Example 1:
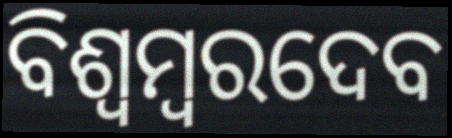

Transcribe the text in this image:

ବିଶ୍ୱମ୍ବରଦେବ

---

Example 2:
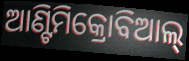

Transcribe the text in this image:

ଆଣ୍ଟିମିକ୍ରୋବିଆଲ୍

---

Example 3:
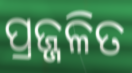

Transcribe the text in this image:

ପ୍ରଜ୍ଜଳିତ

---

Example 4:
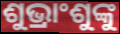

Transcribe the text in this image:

ଶୁଭ୍ରାଂଶୁଙ୍କୁ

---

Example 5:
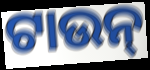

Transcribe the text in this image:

ଟାଉନ୍